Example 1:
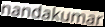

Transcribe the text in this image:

nandakumar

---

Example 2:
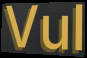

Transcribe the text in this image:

Vul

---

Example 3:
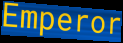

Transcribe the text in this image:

Emperor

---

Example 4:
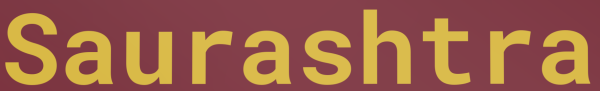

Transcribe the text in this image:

Saurashtra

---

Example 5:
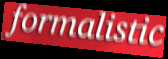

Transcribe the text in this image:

formalistic